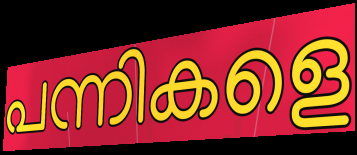
പന്നികളെ